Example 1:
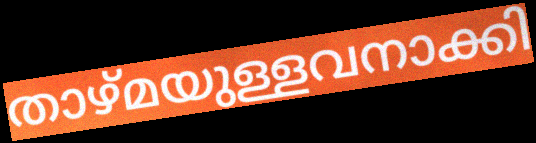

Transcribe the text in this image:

താഴ്മയുള്ളവനാക്കി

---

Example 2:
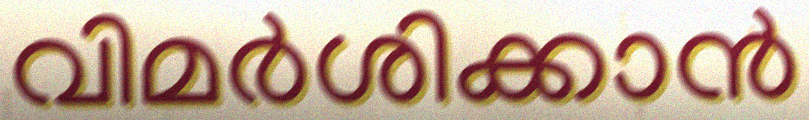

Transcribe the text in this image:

വിമർശിക്കാൻ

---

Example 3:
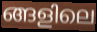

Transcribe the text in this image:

ങ്ങളിലെ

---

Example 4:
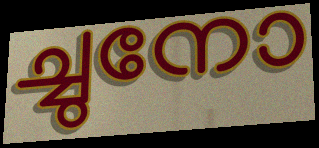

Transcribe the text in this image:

ച്ചുനോ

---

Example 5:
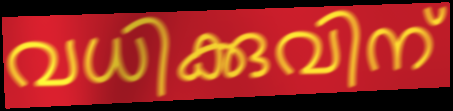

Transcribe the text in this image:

വധിക്കുവിന്